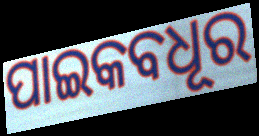
ପାଇକବଧୂର